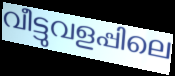
വീട്ടുവളപ്പിലെ